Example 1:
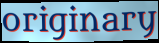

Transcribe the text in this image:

originary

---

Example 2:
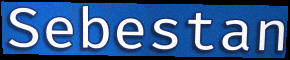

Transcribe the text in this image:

Sebestan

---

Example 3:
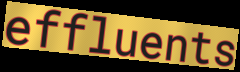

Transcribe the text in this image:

effluents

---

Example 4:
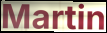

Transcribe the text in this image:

Martin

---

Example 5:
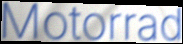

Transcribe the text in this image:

Motorrad